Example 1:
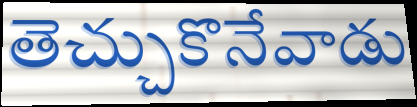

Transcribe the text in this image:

తెచ్చుకొనేవాడు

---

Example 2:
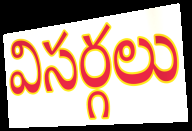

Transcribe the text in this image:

విసర్గలు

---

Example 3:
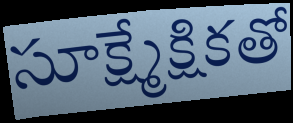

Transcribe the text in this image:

సూక్ష్మేక్షికతో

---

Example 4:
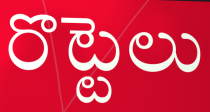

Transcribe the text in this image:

రొట్టెలు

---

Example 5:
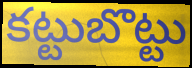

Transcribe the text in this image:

కట్టుబొట్టు